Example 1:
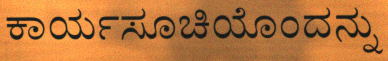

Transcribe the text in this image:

ಕಾರ್ಯಸೂಚಿಯೊಂದನ್ನು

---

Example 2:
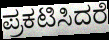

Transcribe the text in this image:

ಪ್ರಕಟಿಸಿದರೆ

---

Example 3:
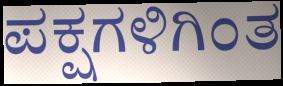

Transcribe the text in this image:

ಪಕ್ಷಗಳಿಗಿಂತ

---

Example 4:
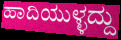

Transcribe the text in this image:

ಹಾದಿಯುಳ್ಳದ್ದು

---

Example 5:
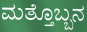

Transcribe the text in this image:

ಮತ್ತೊಬ್ಬನ